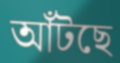
আঁটছে